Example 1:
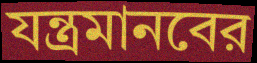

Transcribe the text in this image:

যন্ত্রমানবের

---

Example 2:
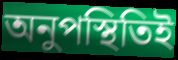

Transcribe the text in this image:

অনুপস্থিতিই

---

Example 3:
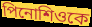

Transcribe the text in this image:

পিনোশিওকে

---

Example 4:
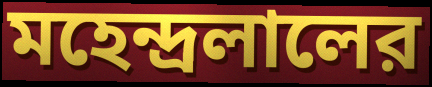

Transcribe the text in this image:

মহেন্দ্রলালের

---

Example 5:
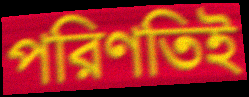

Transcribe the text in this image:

পরিণতিই